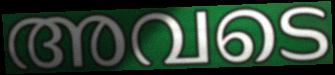
അവടെ